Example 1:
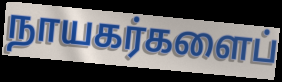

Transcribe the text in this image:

நாயகர்களைப்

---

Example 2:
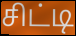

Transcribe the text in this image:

சிட்டி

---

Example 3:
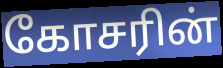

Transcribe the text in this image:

கோசரின்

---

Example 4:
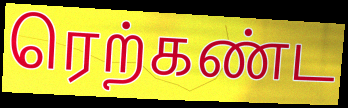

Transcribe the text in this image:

ரெற்கண்ட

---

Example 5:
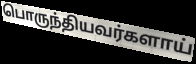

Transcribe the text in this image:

பொருந்தியவர்களாய்